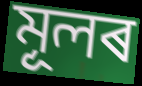
মূলৰ